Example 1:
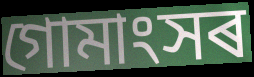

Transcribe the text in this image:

গোমাংসৰ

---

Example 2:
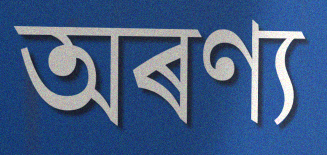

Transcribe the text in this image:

অৰণ্য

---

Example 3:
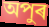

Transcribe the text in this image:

অপুৰ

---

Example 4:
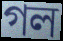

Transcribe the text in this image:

গল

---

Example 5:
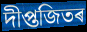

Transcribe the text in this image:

দীপ্তজিতৰ